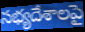
సభ్యదేశాలపై